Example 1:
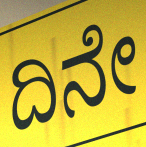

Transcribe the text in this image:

ದಿನೇ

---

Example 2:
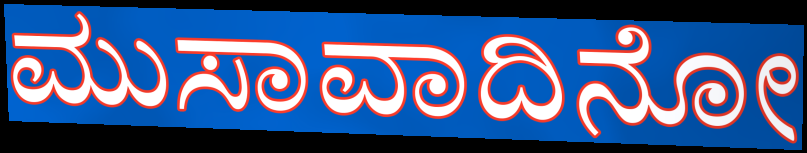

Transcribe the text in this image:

ಮುಸಾವಾದಿನೋ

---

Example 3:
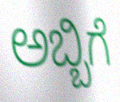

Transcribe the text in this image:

ಅಬ್ಬಿಗೆ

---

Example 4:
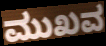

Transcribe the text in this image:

ಮುಖವ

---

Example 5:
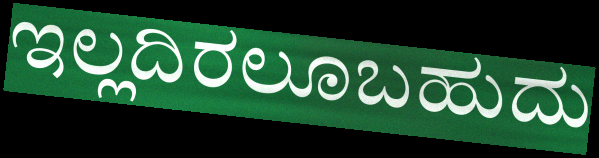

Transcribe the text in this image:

ಇಲ್ಲದಿರಲೂಬಹುದು